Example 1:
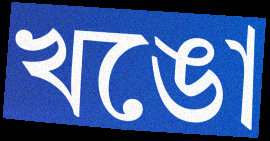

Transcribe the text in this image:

খঙো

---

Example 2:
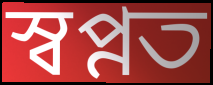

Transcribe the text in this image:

স্বপ্নত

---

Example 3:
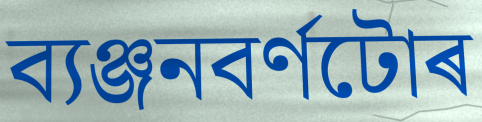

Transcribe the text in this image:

ব্যঞ্জনবৰ্ণটোৰ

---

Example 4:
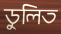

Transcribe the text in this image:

ডুলিত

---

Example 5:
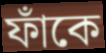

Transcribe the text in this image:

ফাঁকে